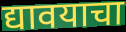
द्यावयाचा